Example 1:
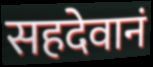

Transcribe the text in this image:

सहदेवानं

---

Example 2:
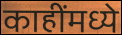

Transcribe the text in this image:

काहींमध्ये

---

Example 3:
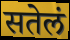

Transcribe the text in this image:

सतेलं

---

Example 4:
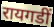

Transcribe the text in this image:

रायगडीं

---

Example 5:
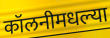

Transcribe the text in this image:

कॉलनीमधल्या